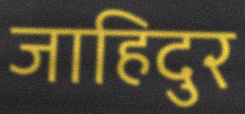
जाहिदुर